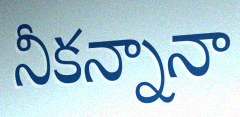
నీకన్నానా